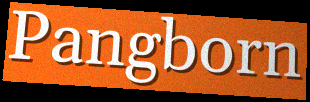
Pangborn